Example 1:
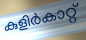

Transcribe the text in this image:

കുളിർകാറ്റ്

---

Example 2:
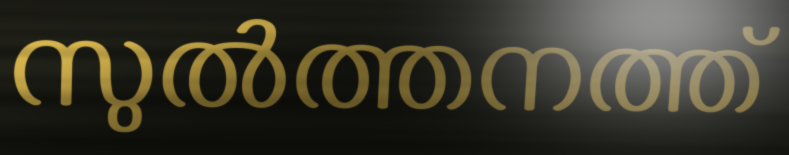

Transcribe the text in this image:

സുൽത്തനത്ത്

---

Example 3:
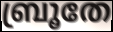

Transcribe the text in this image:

ബ്രൂതേ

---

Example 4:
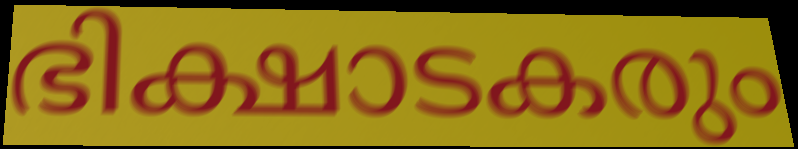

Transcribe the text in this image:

ഭിക്ഷാടകരും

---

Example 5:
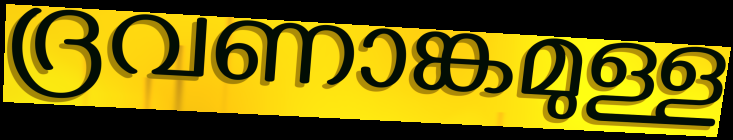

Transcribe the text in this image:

ദ്രവണാങ്കമുള്ള